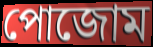
পোজোম